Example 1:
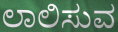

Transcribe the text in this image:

ಲಾಲಿಸುವ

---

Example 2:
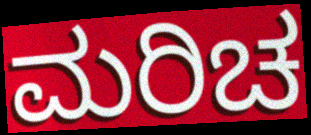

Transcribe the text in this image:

ಮರಿಚ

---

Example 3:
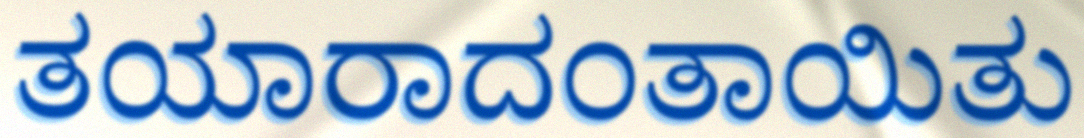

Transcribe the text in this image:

ತಯಾರಾದಂತಾಯಿತು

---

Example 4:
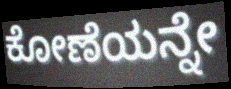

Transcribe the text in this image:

ಕೋಣೆಯನ್ನೇ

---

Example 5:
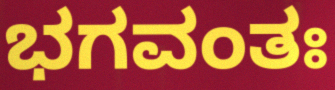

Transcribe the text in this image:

ಭಗವಂತಃ